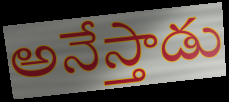
అనేస్తాడు